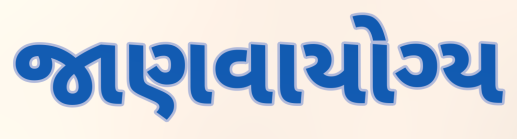
જાણવાયોગ્ય